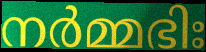
നർമ്മഭിഃ